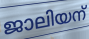
ജാലിയന്